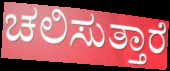
ಚಲಿಸುತ್ತಾರೆ